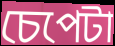
চেপেটা